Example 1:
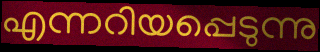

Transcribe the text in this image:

എന്നറിയപ്പെടുന്നു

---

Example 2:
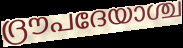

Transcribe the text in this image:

ദ്രൗപദേയാശ്ച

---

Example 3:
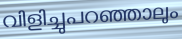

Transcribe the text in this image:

വിളിച്ചുപറഞ്ഞാലും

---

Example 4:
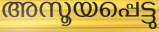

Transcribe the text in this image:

അസൂയപ്പെട്ടു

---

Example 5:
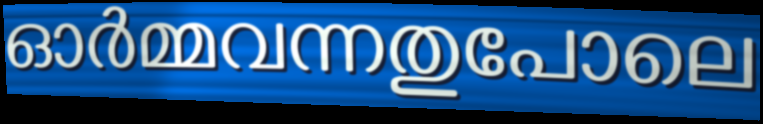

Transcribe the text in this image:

ഓർമ്മവന്നതുപോലെ